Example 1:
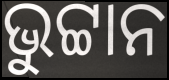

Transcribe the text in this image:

ଭୁଟ୍ଟାନ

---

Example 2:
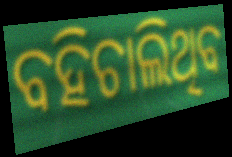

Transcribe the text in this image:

ବହିଚାଲିଥିବ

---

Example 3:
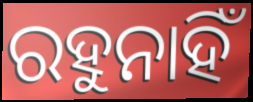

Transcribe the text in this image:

ରହୁନାହିଁ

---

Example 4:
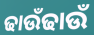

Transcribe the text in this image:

ଢାଉଁଢାଉଁ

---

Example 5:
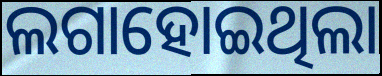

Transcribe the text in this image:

ଲଗାହୋଇଥିଲା